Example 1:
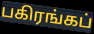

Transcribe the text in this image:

பகிரங்கப்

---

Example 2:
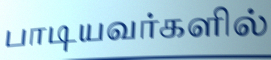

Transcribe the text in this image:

பாடியவர்களில்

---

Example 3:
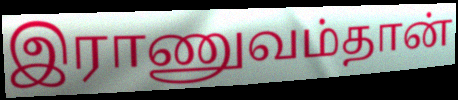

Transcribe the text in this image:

இராணுவம்தான்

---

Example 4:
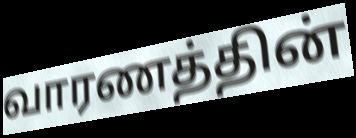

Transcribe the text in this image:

வாரணத்தின்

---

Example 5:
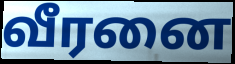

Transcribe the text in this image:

வீரனை